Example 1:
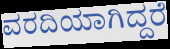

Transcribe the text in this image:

ವರದಿಯಾಗಿದ್ದರೆ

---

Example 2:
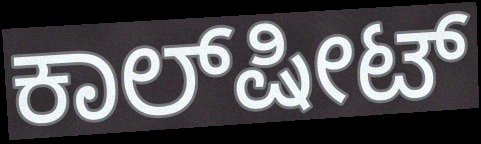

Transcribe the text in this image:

ಕಾಲ್‌ಷೀಟ್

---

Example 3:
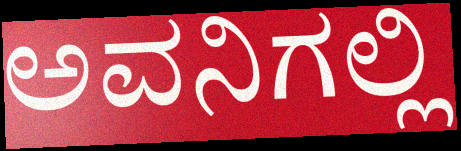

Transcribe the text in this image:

ಅವನಿಗಲ್ಲಿ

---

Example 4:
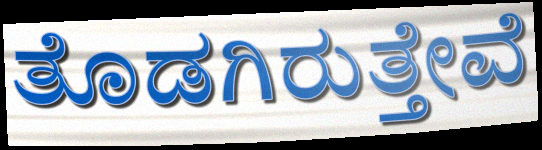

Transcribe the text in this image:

ತೊಡಗಿರುತ್ತೇವೆ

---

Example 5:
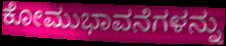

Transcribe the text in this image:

ಕೋಮುಭಾವನೆಗಳನ್ನು